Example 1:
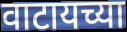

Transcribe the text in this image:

वाटायच्या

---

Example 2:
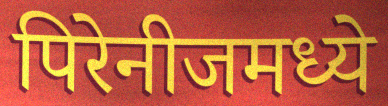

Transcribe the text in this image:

पिरेनीजमध्ये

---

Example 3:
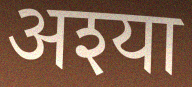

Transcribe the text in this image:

अश्या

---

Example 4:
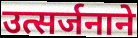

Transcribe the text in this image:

उत्सर्जनाने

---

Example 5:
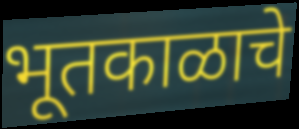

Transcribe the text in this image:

भूतकाळाचे